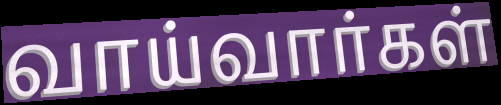
வாய்வார்கள்